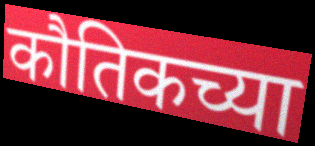
कौतिकच्या